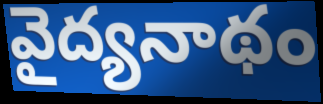
వైద్యనాథం